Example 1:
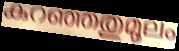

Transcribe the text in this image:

കുറഞ്ഞതുമൂലം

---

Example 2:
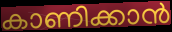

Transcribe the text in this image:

കാണിക്കാൻ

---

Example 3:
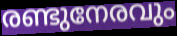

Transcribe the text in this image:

രണ്ടുനേരവും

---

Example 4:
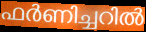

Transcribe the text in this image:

ഫർണിച്ചറിൽ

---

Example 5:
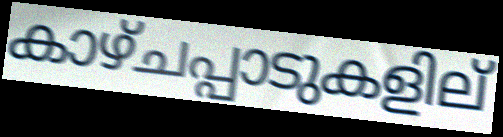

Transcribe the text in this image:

കാഴ്ചപ്പാടുകളില്